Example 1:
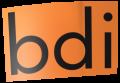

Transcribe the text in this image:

bdi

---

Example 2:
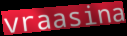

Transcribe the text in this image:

vraasina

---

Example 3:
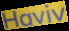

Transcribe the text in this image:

Haviv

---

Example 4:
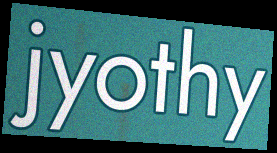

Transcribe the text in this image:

jyothy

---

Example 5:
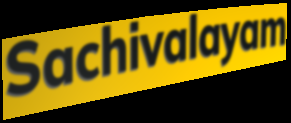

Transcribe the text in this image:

Sachivalayam